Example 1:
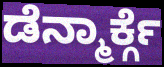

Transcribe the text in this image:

ಡೆನ್ಮಾರ್ಕ್ಗೆ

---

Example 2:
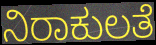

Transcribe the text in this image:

ನಿರಾಕುಲತೆ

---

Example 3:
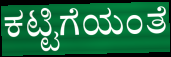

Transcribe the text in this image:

ಕಟ್ಟಿಗೆಯಂತೆ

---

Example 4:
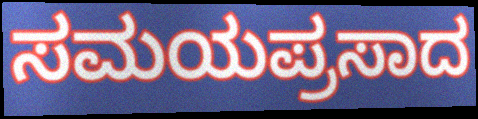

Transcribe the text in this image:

ಸಮಯಪ್ರಸಾದ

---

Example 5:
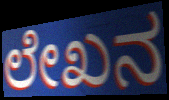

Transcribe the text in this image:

ಲೇಖನ